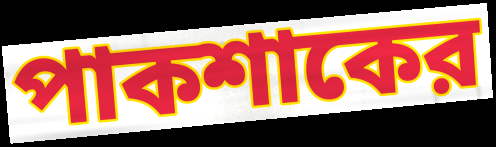
পাকশাকের